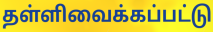
தள்ளிவைக்கப்பட்டு